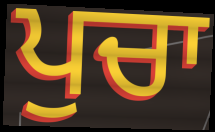
ਪੁਚਾ